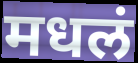
मधलं